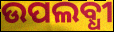
ଉପଲବ୍ଧୀ